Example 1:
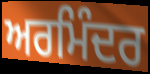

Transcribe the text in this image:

ਅਰਮਿੰਦਰ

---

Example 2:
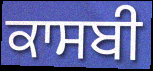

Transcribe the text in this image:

ਕਾਸਬੀ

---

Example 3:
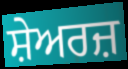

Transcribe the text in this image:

ਸ਼ੇਅਰਜ਼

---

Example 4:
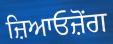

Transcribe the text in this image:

ਜ਼ਿਆਓਜ਼ੋਂਗ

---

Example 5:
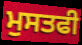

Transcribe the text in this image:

ਮੁਸਤਫੀ